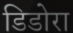
डिडोरा